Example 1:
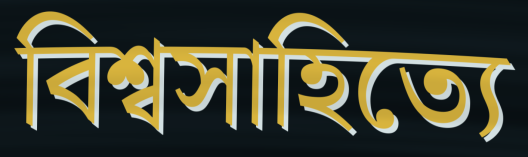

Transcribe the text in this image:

বিশ্বসাহিত্যে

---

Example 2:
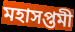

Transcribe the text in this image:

মহাসপ্তমী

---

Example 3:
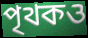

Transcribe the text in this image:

পৃথকও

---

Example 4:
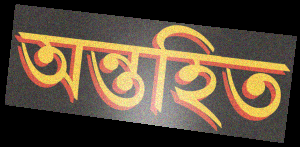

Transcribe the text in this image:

অন্তহিত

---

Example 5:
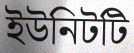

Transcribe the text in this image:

ইউনিটটি